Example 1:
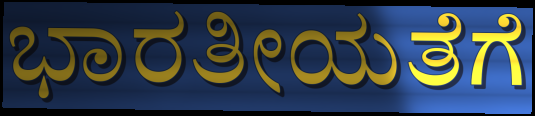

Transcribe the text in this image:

ಭಾರತೀಯತೆಗೆ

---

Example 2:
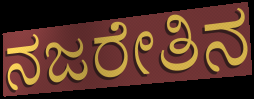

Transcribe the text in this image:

ನಜರೇತಿನ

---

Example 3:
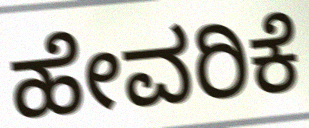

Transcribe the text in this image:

ಹೇವರಿಕೆ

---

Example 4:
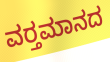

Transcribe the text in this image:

ವರ‍್ತಮಾನದ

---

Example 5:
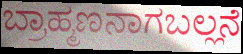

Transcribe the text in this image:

ಬ್ರಾಹ್ಮಣನಾಗಬಲ್ಲನೆ